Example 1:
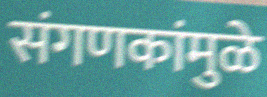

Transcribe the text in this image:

संगणकांमुळे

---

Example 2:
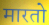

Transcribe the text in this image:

मारतो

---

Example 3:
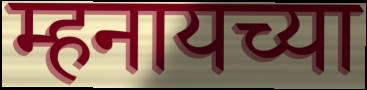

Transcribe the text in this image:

म्हनायच्या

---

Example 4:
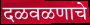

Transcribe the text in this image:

दळवळणाचे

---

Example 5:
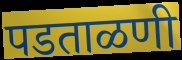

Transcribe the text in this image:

पडताळणी